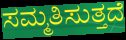
ಸಮ್ಮತಿಸುತ್ತದೆ